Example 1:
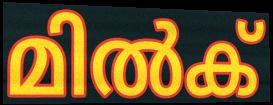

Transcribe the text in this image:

മിൽക്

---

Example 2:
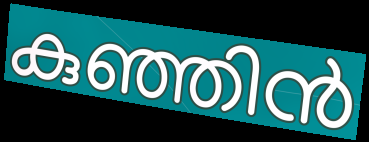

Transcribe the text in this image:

കുഞ്ഞിൻ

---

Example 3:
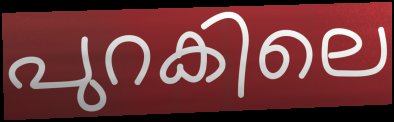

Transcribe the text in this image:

പുറകിലെ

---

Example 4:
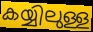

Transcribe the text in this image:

കയ്യിലുള്ള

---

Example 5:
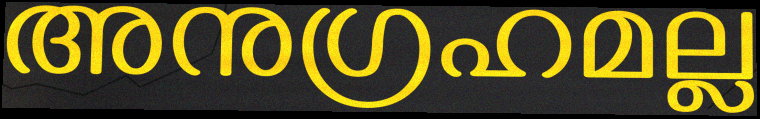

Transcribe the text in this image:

അനുഗ്രഹമല്ല